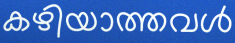
കഴിയാത്തവൾ